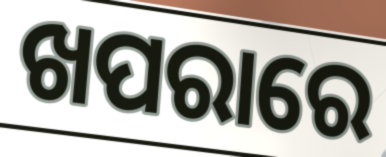
ଖପରାରେ